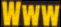
Www